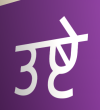
उष्टे